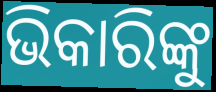
ଭିକାରିଙ୍କୁ